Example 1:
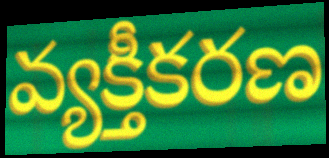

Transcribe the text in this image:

వ్యక్తీకరణ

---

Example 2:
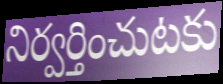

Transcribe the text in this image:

నిర్వర్తించుటకు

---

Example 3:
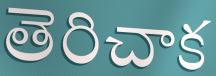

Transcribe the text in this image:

తెరిచాక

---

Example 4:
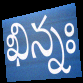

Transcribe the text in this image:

ఖిన్నః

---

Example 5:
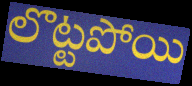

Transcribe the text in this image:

లొట్టపోయి